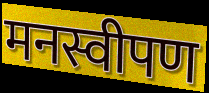
मनस्वीपण